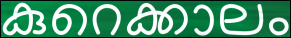
കുറെക്കാലം